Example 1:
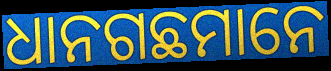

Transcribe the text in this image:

ଧାନଗଛମାନେ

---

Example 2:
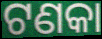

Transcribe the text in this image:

ଟଣକା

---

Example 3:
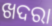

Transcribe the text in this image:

ଖଦରା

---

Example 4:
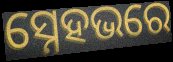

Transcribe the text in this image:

ସ୍ନେହଭରେ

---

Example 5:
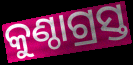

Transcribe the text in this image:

କୁଣ୍ଠାଗ୍ରସ୍ତ